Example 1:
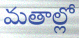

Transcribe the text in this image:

మతాల్లో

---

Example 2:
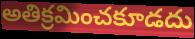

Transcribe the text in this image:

అతిక్రమించకూడదు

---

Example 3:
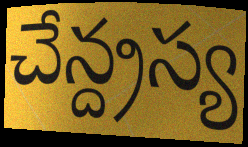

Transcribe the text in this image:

చేన్ద్రస్య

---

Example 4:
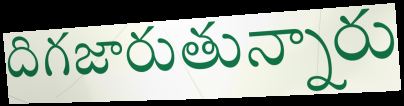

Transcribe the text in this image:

దిగజారుతున్నారు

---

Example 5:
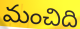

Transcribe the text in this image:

మంచిది